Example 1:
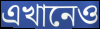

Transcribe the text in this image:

এখানেও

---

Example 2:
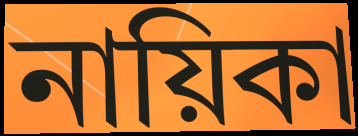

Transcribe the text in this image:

নায়িকা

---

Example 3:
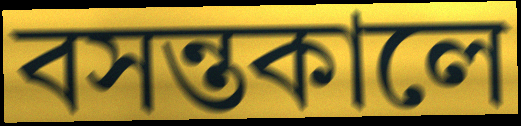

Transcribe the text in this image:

বসন্তকালে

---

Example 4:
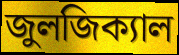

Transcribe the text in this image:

জুলজিক্যাল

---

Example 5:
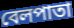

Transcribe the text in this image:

বেলপাতা